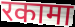
रकामा